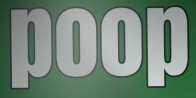
poop